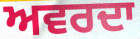
ਅਵਰਦਾ